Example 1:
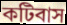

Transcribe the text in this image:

কটিবাস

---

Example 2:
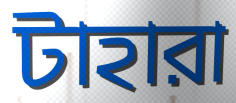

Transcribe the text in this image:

টাহারা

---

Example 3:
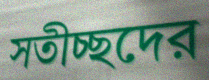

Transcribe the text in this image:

সতীচ্ছদের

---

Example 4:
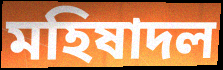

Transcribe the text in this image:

মহিষাদল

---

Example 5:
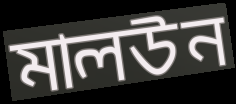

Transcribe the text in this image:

মালউন